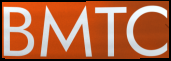
BMTC